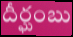
దీర్ఘంబు